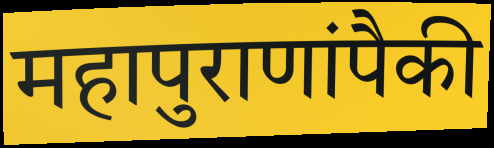
महापुराणांपैकी